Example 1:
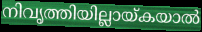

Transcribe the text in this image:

നിവൃത്തിയില്ലായ്കയാൽ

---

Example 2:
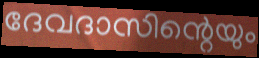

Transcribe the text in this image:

ദേവദാസിന്റെയും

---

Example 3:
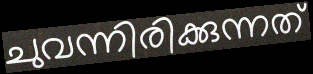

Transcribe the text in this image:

ചുവന്നിരിക്കുന്നത്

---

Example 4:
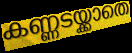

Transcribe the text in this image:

കണ്ണടയ്ക്കാതെ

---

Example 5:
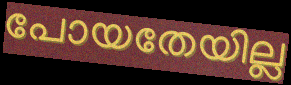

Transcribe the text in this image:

പോയതേയില്ല